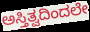
ಅಸ್ತಿತ್ವದಿಂದಲೇ